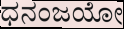
ಧನಂಜಯೋ